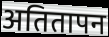
अतितापन